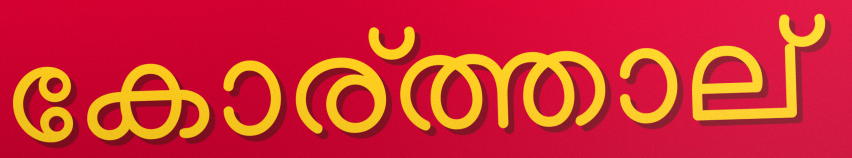
കോര്ത്താല്